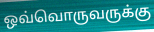
ஒவ்வொருவருக்கு